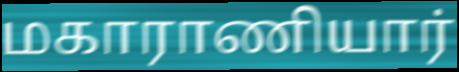
மகாராணியார்